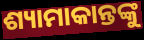
ଶ୍ୟାମାକାନ୍ତଙ୍କୁ